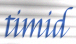
timid